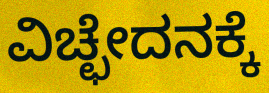
ವಿಚ್ಛೇದನಕ್ಕೆ